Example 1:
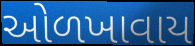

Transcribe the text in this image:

ઓળખાવાય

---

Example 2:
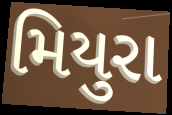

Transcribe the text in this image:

મિયુરા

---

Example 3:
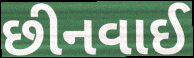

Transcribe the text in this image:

છીનવાઈ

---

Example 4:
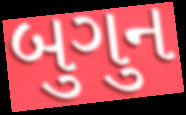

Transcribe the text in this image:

બુગુન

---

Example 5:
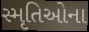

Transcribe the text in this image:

સ્મૃતિઓના